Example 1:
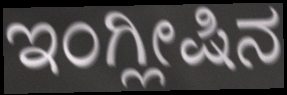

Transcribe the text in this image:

ಇಂಗ್ಲೀಷಿನ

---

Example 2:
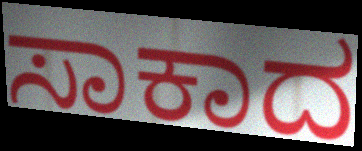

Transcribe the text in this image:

ಸಾಕಾದ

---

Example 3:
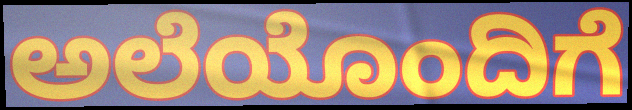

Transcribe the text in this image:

ಅಲೆಯೊಂದಿಗೆ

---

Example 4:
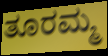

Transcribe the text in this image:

ತೂರಮ್ಮ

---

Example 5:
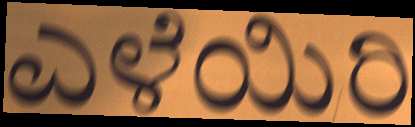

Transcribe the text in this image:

ಎಳೆಯಿರಿ